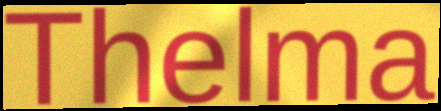
Thelma